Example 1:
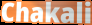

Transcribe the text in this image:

Chakali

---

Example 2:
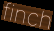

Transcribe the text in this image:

finch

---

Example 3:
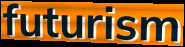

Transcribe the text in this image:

futurism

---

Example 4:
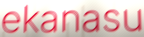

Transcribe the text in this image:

ekanasu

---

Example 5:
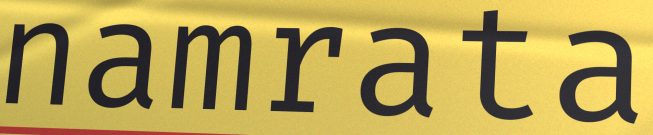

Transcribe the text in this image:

namrata